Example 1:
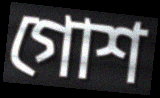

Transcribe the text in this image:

গোশ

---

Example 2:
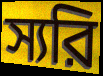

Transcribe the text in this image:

স্যরি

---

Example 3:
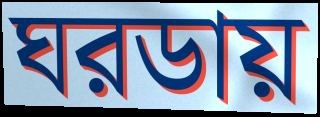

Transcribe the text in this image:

ঘরডায়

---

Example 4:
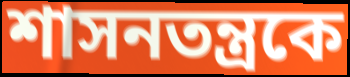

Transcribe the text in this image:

শাসনতন্ত্রকে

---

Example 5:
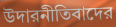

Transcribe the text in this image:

উদারনীতিবাদের